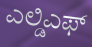
ಎಲ್ಡಿಎಫ್